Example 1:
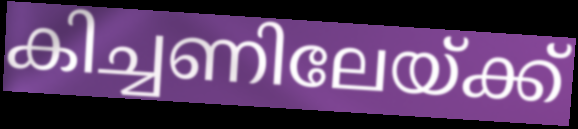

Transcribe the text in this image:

കിച്ചണിലേയ്ക്ക്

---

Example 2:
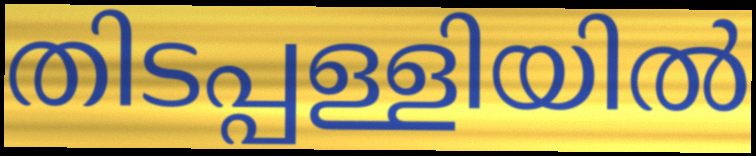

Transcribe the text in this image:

തിടപ്പള്ളിയിൽ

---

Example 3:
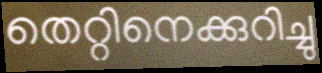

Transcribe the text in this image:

തെറ്റിനെക്കുറിച്ചു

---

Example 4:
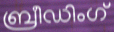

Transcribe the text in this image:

ബ്രീഡിംഗ്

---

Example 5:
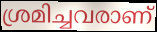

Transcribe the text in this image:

ശ്രമിച്ചവരാണ്